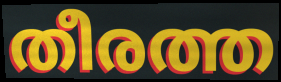
തീരത്ത